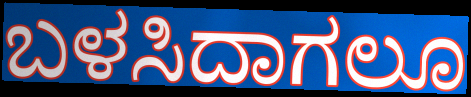
ಬಳಸಿದಾಗಲೂ